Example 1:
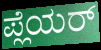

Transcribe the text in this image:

ಪ್ಲೆಯರ್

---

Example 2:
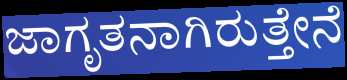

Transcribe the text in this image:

ಜಾಗೃತನಾಗಿರುತ್ತೇನೆ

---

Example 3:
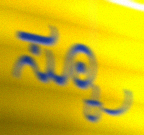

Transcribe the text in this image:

ಸ್ಕ್ರೂ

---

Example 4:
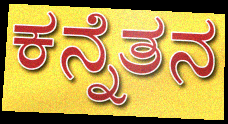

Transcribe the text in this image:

ಕನ್ನೆತನ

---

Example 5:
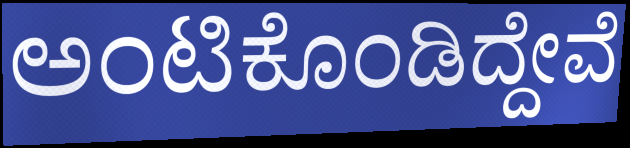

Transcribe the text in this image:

ಅಂಟಿಕೊಂಡಿದ್ದೇವೆ